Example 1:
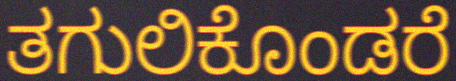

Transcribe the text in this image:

ತಗುಲಿಕೊಂಡರೆ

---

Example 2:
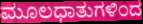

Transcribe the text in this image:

ಮೂಲಧಾತುಗಳಿಂದ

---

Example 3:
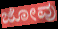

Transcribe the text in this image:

ಜೋವು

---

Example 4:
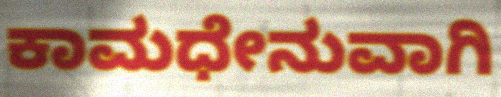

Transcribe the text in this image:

ಕಾಮಧೇನುವಾಗಿ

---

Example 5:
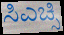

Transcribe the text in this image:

ಸಿಎಚ್ಸಿ